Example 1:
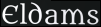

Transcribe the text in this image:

Eldams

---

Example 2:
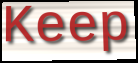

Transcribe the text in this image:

Keep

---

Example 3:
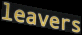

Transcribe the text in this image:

leavers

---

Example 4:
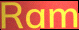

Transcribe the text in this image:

Ram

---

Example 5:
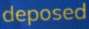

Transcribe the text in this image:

deposed